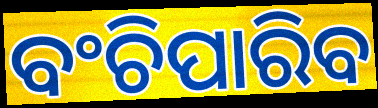
ବଂଚିପାରିବ